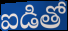
ఐడితో